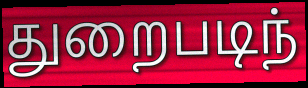
துறைபடிந்